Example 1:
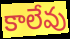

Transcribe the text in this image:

కాలేవు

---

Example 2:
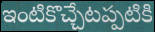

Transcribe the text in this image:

ఇంటికొచ్చేటప్పటికి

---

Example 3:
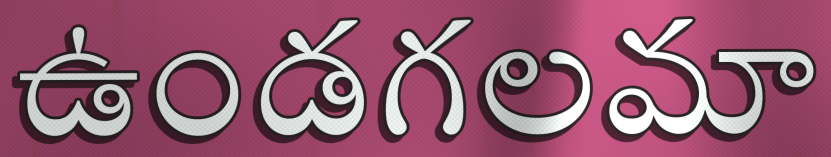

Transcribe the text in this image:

ఉండగలమా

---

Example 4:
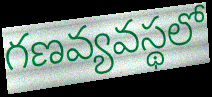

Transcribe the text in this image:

గణవ్యవస్థలో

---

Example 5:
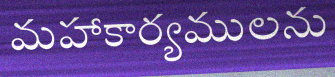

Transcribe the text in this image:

మహాకార్యములను